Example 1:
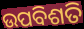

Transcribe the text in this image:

ଉପବିଶତି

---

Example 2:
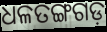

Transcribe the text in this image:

ଧଳତଙ୍ଗଗଡ଼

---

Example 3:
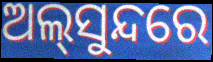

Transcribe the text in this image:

ଅଲ୍‌ସୁନ୍ଦରେ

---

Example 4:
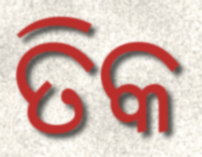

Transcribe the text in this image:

ତିକ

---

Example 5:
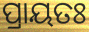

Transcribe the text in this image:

ପ୍ରାୟତଃ